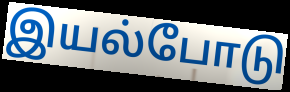
இயல்போடு